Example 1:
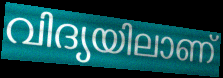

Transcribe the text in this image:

വിദ്യയിലാണ്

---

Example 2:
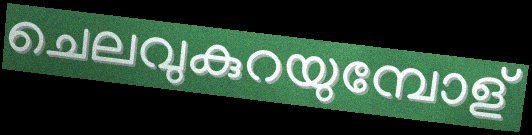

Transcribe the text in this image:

ചെലവുകുറയുമ്പോള്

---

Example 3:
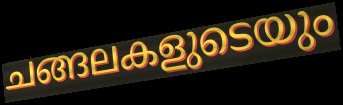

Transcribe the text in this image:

ചങ്ങലകളുടെയും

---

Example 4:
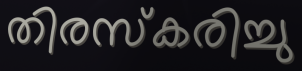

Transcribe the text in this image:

തിരസ്കരിച്ചു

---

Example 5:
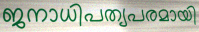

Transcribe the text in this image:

ജനാധിപത്യപരമായി